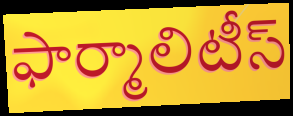
ఫార్మాలిటీస్